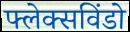
फ्लेक्सविंडो